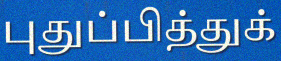
புதுப்பித்துக்